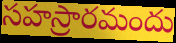
సహస్రారమందు